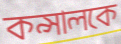
কন্সালকে